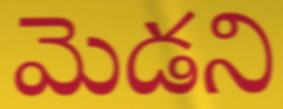
మెడని